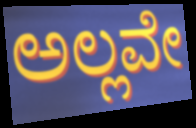
ಅಲ್ಲವೇ